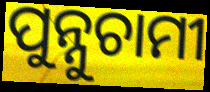
ପୁନ୍ନୁଚାମୀ